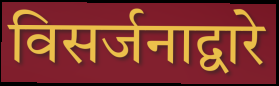
विसर्जनाद्वारे